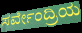
ಸರ್ವೇಂದ್ರಿಯ